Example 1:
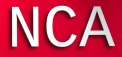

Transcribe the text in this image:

NCA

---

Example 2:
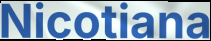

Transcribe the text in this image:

Nicotiana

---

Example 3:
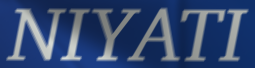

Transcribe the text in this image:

NIYATI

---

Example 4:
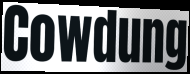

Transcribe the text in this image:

Cowdung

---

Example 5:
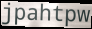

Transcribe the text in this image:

jpahtpw